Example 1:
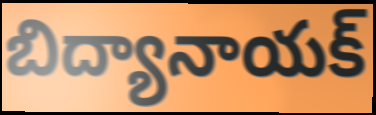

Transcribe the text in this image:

బిద్యానాయక్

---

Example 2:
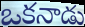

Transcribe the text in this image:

ఒకనాడు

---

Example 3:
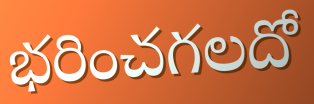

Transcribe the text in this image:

భరించగలదో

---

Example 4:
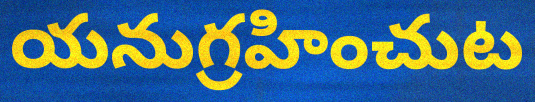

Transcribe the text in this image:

యనుగ్రహించుట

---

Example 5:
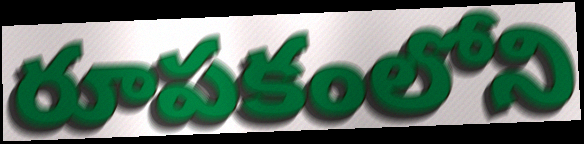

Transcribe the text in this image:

రూపకంలోని